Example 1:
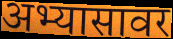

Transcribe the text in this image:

अभ्यासावर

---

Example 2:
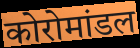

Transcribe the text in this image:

कोरोमांडल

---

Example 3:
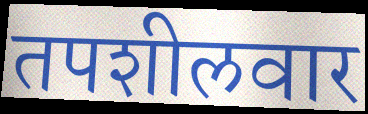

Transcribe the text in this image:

तपशीलवार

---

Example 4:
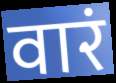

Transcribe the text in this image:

वारं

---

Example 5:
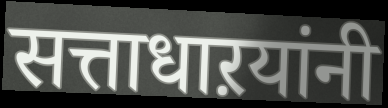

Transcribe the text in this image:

सत्ताधाऱयांनी